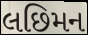
લછિમન